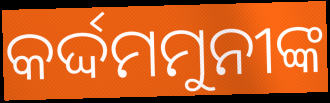
କର୍ଦ୍ଦମମୁନୀଙ୍କ